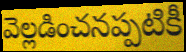
వెల్లడించనప్పటికీ